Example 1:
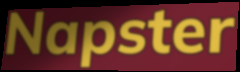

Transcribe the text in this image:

Napster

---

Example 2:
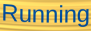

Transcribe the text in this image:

Running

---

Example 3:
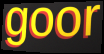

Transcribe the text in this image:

goor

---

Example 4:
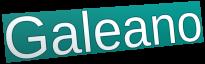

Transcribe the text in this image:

Galeano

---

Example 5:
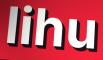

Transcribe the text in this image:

lihu